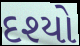
દશ્યો